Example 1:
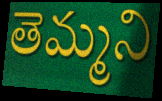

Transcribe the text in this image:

తెమ్మని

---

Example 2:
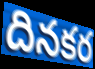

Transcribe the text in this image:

దినకర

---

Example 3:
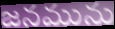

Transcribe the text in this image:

జనమును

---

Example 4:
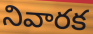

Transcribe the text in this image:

నివారక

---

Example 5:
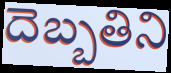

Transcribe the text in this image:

దెబ్బతిని